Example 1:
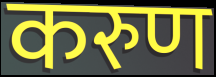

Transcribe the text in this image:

करुण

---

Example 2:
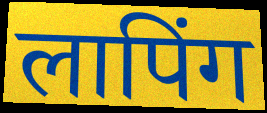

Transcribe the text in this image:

लापिंग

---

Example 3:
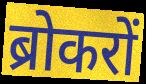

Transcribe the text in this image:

ब्रोकरों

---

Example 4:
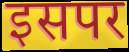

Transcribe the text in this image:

इसपर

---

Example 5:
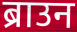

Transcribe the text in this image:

ब्राउन